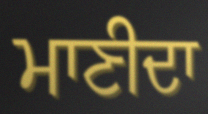
ਮਾਣੀਦਾ